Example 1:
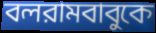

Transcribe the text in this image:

বলরামবাবুকে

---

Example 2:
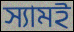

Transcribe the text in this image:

স্যামই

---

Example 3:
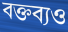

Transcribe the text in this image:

বক্তব্যও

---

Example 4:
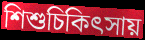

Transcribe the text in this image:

শিশুচিকিৎসায়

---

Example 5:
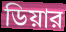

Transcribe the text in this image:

ডিয়ার